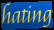
hating